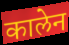
कालेन